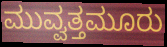
ಮುವ್ವತ್ತಮೂರು